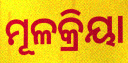
ମୂଳକ୍ରିୟା